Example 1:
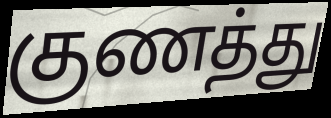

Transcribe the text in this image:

குணத்து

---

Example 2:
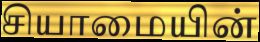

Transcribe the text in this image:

சியாமையின்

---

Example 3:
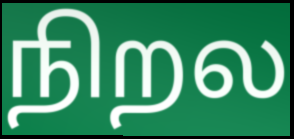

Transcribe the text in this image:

நிறல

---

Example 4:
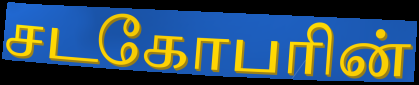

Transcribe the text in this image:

சடகோபரின்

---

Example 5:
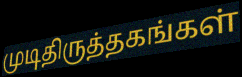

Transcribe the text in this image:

முடிதிருத்தகங்கள்